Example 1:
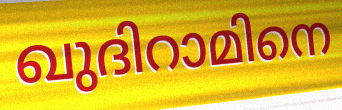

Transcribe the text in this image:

ഖുദിറാമിനെ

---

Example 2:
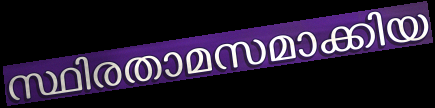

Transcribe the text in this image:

സ്ഥിരതാമസമാക്കിയ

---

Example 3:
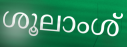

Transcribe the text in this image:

ശൂലാംശ്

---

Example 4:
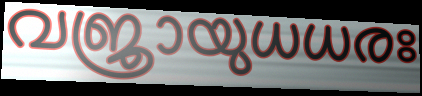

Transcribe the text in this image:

വജ്രായുധധരഃ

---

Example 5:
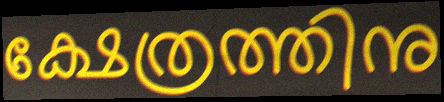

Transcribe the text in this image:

ക്ഷേത്രത്തിനു